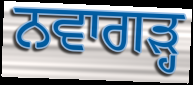
ਨਵਾਗੜ੍ਹ